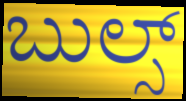
ಬುಲ್ಸ್